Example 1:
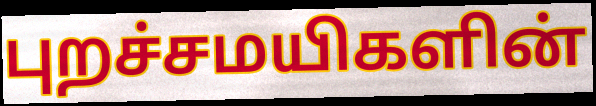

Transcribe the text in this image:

புறச்சமயிகளின்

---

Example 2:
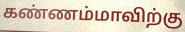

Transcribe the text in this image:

கண்ணம்மாவிற்கு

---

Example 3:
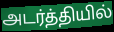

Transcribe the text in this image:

அடர்த்தியில்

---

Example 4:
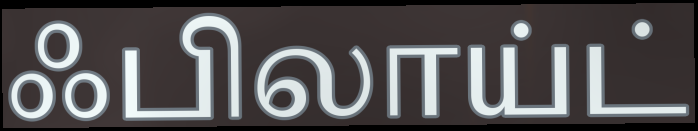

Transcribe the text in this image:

ஃபிலாய்ட்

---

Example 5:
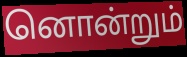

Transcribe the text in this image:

னொன்றும்